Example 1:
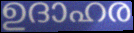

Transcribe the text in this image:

ഉദാഹര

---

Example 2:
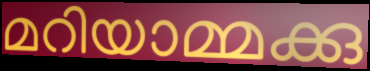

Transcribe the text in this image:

മറിയാമ്മക്കു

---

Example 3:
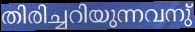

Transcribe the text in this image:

തിരിച്ചറിയുന്നവനു്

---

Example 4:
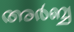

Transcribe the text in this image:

അർബ്ബ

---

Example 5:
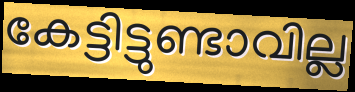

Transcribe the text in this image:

കേട്ടിട്ടുണ്ടാവില്ല